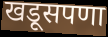
खडूसपणा